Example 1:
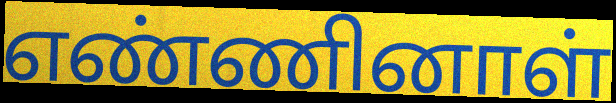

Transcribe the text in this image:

எண்ணினாள்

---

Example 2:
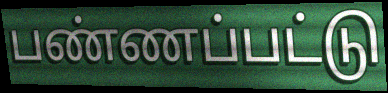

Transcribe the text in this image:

பண்ணப்பட்டு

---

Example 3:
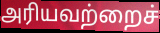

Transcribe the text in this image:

அரியவற்றைச்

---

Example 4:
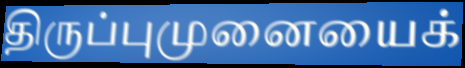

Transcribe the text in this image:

திருப்புமுனையைக்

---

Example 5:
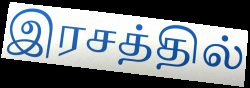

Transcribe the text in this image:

இரசத்தில்